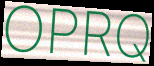
OPRQ